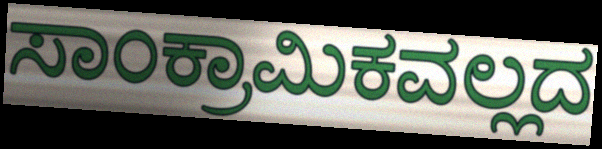
ಸಾಂಕ್ರಾಮಿಕವಲ್ಲದ